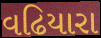
વઢિયારા